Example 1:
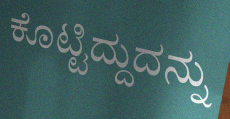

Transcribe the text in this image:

ಕೊಟ್ಟಿದ್ದುದನ್ನು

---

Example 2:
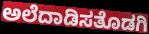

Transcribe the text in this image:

ಅಲೆದಾಡಿಸತೊಡಗಿ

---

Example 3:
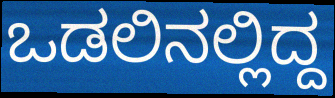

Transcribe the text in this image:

ಒಡಲಿನಲ್ಲಿದ್ದ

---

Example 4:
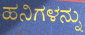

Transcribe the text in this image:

ಹನಿಗಳನ್ನು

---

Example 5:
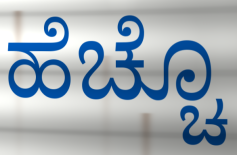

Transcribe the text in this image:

ಹೆಚ್ಚೊ